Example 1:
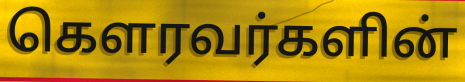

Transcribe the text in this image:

கௌரவர்களின்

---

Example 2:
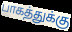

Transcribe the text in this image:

பாகத்துக்கு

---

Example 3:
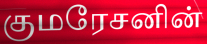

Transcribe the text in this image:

குமரேசனின்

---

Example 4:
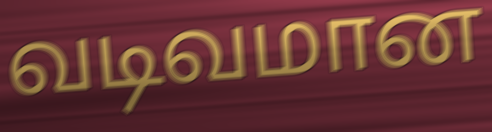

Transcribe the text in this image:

வடிவமான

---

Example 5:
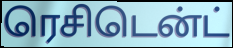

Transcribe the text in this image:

ரெசிடென்ட்